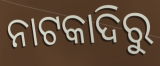
ନାଟକାଦିରୁ